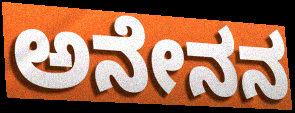
ಅನೇನನ